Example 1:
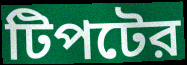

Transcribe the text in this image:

টিপটের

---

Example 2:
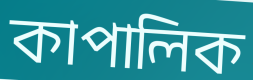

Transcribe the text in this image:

কাপালিক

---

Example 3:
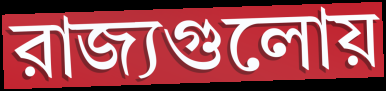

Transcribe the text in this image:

রাজ্যগুলোয়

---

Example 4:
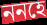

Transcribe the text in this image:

ননহে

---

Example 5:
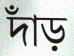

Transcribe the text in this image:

দাঁড়